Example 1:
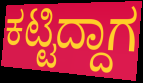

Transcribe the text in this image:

ಕಟ್ಟಿದ್ದಾಗ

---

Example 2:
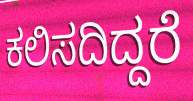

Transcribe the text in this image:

ಕಲಿಸದಿದ್ದರೆ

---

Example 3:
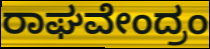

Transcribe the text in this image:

ರಾಘವೇಂದ್ರಂ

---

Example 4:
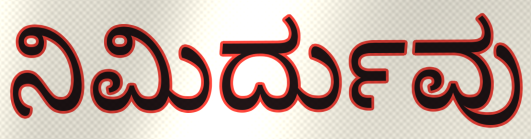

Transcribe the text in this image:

ನಿಮಿರ್ದುವು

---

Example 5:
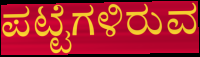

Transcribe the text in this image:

ಪಟ್ಟೆಗಳಿರುವ